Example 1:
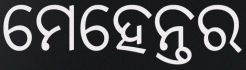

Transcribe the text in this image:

ମେହେନ୍ତର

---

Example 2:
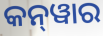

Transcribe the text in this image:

କନ୍‍ୱାର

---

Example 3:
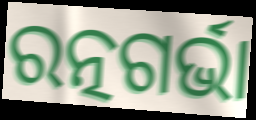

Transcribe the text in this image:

ରତ୍ନଗର୍ଭା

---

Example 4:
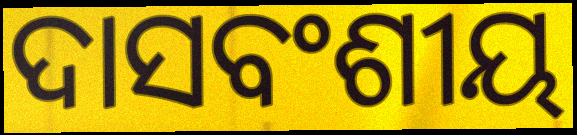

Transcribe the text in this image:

ଦାସବଂଶୀୟ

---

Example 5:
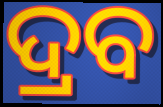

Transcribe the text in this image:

ଦ୍ରବ